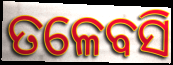
ତଳେବସି